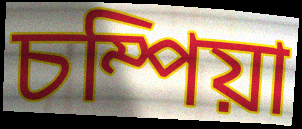
চম্পিয়া